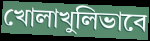
খোলাখুলিভাবে